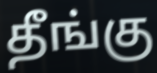
தீங்கு